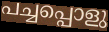
പച്ചപ്പൊളു